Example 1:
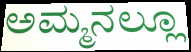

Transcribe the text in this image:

ಅಮ್ಮನಲ್ಲೂ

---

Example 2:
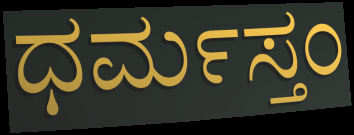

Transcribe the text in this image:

ಧರ್ಮಸ್ತಂ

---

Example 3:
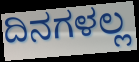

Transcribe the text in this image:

ದಿನಗಳಲ್ಲ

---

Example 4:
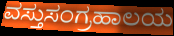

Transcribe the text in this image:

ವಸ್ತುಸಂಗ್ರಹಾಲಯ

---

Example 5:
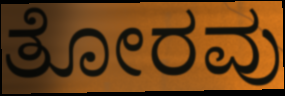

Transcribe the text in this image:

ತೋರವು